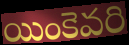
యింకెవరి